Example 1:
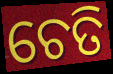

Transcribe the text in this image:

ଚେତି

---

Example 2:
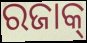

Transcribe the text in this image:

ରଜାକ୍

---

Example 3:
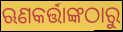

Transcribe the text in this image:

ଋଣକର୍ତ୍ତାଙ୍କଠାରୁ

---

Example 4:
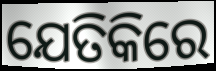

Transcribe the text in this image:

ଯେତିକିରେ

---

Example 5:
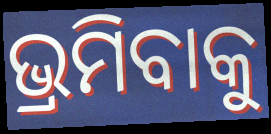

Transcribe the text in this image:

ଭ୍ରମିବାକୁ